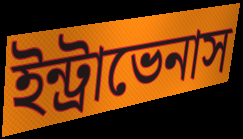
ইন্ট্রাভেনাস